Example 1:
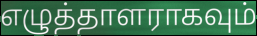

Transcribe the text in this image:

எழுத்தாளராகவும்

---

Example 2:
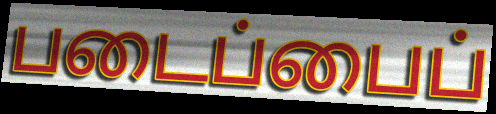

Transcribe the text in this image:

படைப்பைப்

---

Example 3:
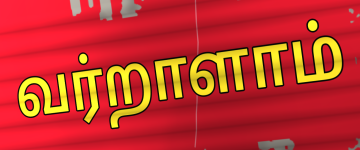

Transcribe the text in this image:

வர்றாளாம்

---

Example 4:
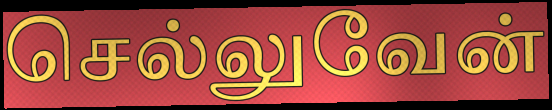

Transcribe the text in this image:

செல்லுவேன்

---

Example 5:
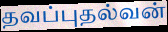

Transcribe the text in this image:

தவப்புதல்வன்